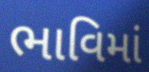
ભાવિમાં